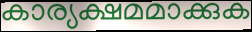
കാര്യക്ഷമമാക്കുക